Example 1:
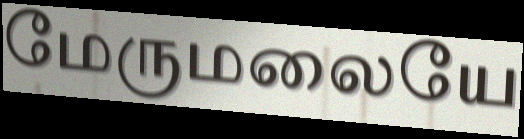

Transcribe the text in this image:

மேருமலையே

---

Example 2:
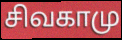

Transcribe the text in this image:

சிவகாமு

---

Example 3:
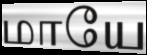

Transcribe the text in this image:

மாயே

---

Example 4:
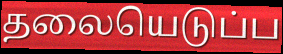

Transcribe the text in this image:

தலையெடுப்ப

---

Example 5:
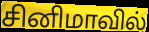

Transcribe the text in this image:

சினிமாவில்